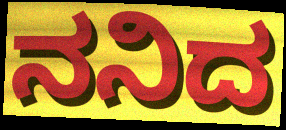
ನನಿದ